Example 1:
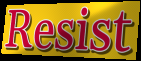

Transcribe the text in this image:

Resist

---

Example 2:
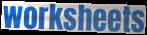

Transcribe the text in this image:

worksheets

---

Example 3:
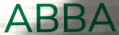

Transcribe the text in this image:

ABBA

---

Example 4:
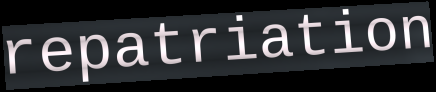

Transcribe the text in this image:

repatriation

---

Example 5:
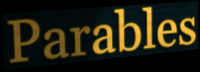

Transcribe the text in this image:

Parables